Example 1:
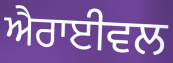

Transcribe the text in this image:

ਐਰਾਈਵਲ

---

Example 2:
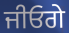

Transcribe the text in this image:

ਜੀਓਗੇ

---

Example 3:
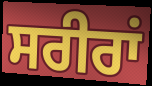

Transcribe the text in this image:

ਸਰੀਰਾਂ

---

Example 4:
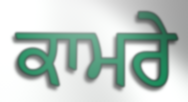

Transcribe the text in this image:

ਕਾਮਰੇ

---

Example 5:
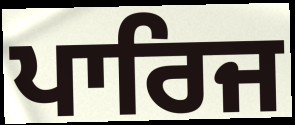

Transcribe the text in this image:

ਪਾਰਿਜ